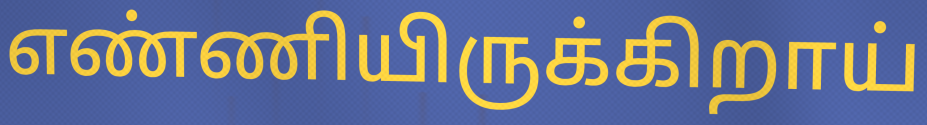
எண்ணியிருக்கிறாய்